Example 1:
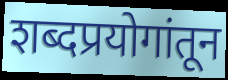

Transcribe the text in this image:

शब्दप्रयोगांतून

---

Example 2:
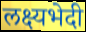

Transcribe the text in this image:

लक्ष्यभेदी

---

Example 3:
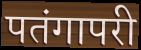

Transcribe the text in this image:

पतंगापरी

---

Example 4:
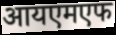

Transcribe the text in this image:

आयएमएफ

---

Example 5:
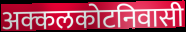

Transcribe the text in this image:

अक्कलकोटनिवासी